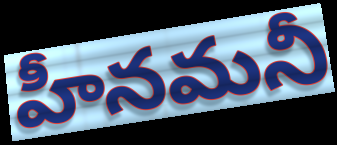
హీనమనీ